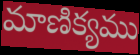
మాణిక్యము